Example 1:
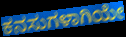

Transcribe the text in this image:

ಕನಸುಗಳಾಗಿಯೇ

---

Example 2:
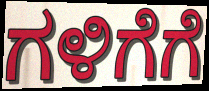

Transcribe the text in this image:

ಗಳಿಗೆಗೆ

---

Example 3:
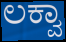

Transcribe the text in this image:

ಲಕ್ವಾ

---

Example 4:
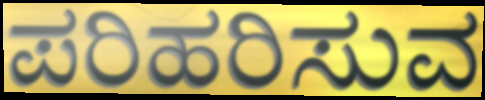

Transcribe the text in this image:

ಪರಿಹರಿಸುವ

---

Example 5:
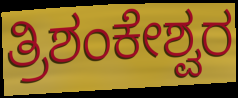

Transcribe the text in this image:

ತ್ರಿಶಂಕೇಶ್ವರ